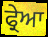
ਫ੍ਰੇਆ